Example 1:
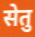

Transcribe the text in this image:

सेतु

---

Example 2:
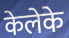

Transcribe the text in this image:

केलेके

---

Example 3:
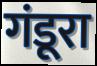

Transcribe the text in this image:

गंडूरा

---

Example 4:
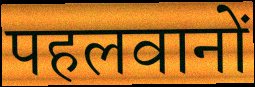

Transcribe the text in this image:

पहलवानों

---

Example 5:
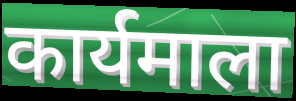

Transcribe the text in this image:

कार्यमाला